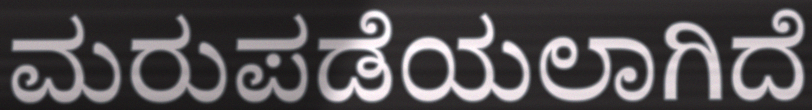
ಮರುಪಡೆಯಲಾಗಿದೆ